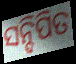
ସନ୍ଦିପିତ